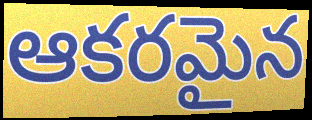
ఆకరమైన